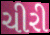
ચીરી